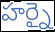
హర్నై